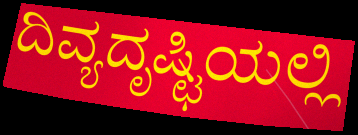
ದಿವ್ಯದೃಷ್ಟಿಯಲ್ಲಿ